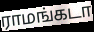
ராமங்கடா